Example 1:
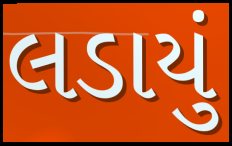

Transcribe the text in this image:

લડાયું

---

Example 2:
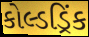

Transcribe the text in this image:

કોલ્ડડ્રિંક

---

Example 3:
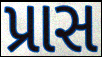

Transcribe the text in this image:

પ્રાસ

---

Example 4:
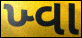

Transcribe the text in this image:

ખ્વા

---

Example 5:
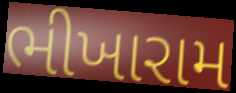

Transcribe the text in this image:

ભીખારામ